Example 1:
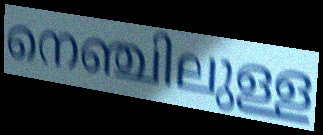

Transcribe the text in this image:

നെഞ്ചിലുള്ള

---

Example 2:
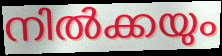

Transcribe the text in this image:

നിൽക്കയും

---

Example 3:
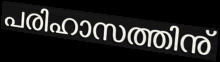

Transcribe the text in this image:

പരിഹാസത്തിനു്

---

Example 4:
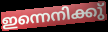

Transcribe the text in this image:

ഇന്നെനിക്കു്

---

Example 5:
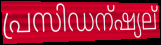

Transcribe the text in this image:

പ്രസിഡന്ഷ്യല്